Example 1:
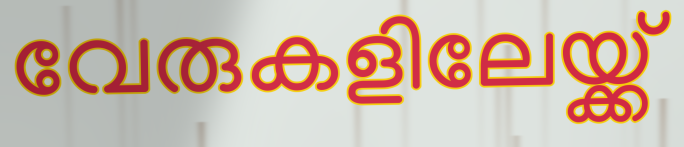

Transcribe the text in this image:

വേരുകളിലേയ്ക്ക്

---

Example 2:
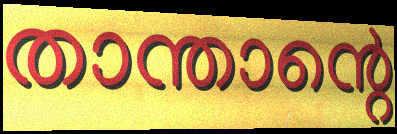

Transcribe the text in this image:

താന്താന്റെ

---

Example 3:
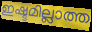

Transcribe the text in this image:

ഇഷ്ടമില്ലാത്ത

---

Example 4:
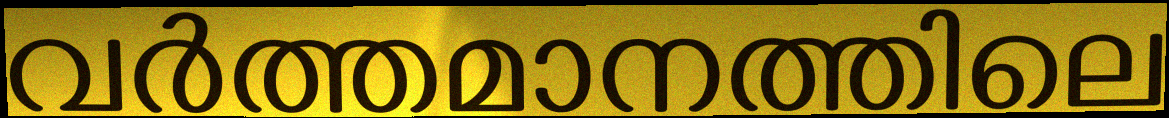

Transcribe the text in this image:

വർത്തമാനത്തിലെ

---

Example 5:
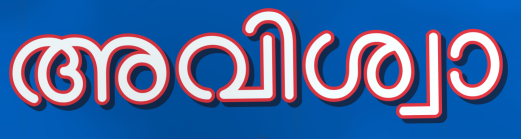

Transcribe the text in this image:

അവിശ്വാ